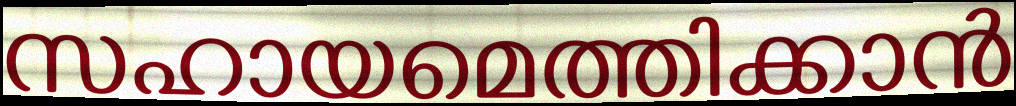
സഹായമെത്തിക്കാൻ